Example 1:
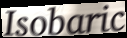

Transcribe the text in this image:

Isobaric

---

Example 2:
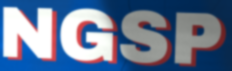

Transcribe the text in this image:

NGSP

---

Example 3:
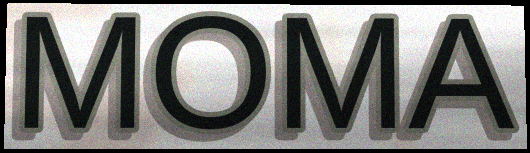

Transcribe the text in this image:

MOMA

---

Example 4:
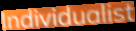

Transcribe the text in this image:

Individualist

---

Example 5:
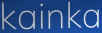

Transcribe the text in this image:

kainka